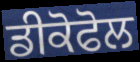
ਡੀਕੋਫੋਲ